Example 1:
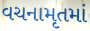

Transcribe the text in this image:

વચનામૃતમાં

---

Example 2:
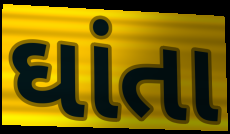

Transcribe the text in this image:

ઘાંતા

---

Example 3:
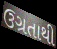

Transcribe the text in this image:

ઉગ્રતાથી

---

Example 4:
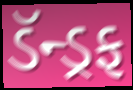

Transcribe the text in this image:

ડૅન્ડ્રફ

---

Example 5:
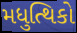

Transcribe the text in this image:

મધુત્થિકો